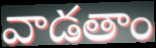
వాడతాం